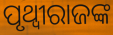
ପୃଥ୍ଵୀରାଜଙ୍କ